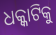
ଧକ୍କାଟିକୁ